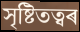
সৃষ্টিতত্বৰ